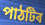
পাঠটিৰ